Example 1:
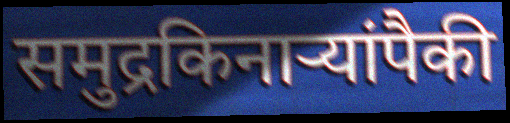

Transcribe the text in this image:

समुद्रकिनाऱ्यांपैकी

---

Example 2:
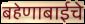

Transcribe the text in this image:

बहेणाबाईचे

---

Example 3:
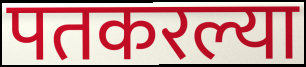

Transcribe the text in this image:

पतकरल्या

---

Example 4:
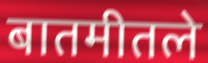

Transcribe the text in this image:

बातमीतले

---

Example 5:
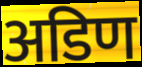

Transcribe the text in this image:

अडिण